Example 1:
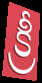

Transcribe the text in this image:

క్రీ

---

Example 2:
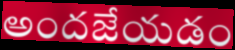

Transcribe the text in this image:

అందజేయడం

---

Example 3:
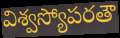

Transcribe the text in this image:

విశ్వస్యోపరతౌ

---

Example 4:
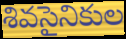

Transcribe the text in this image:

శివసైనికుల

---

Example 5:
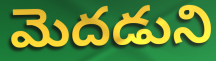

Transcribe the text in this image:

మెదడుని